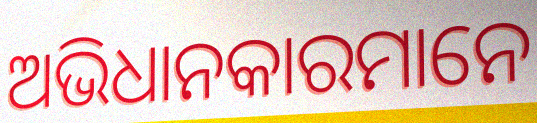
ଅଭିଧାନକାରମାନେ